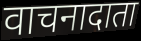
वाचनादाता